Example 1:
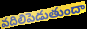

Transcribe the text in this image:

వదిలిపెడుతుందా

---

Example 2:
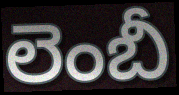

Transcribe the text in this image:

లెంబీ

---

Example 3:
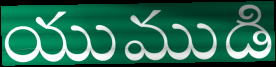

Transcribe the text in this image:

యుముడి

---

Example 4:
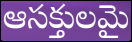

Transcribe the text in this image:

ఆసక్తులమై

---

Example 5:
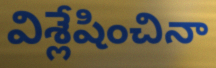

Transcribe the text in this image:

విశ్లేషించినా